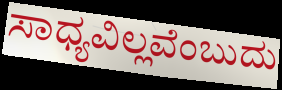
ಸಾಧ್ಯವಿಲ್ಲವೆಂಬುದು